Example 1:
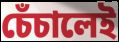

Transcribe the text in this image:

চেঁচালেই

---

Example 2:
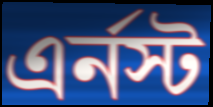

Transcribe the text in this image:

এর্নস্ট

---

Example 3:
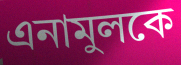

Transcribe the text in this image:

এনামুলকে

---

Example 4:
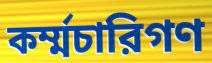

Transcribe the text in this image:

কর্ম্মচারিগণ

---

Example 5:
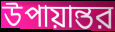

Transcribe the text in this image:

উপায়ান্তর